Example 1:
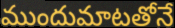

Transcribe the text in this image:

ముందుమాటతోనే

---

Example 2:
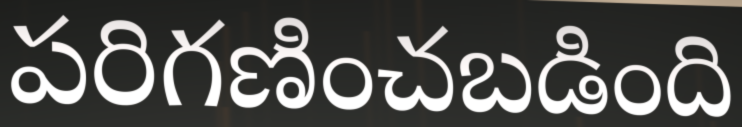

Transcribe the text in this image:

పరిగణించబడింది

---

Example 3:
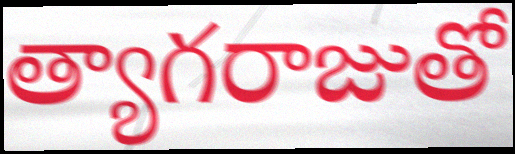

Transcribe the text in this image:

త్యాగరాజుతో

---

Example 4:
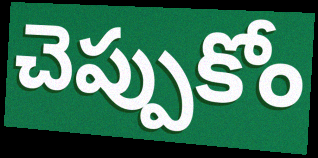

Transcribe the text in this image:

చెప్పుకోం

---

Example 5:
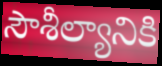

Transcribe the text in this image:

సౌశీల్యానికి